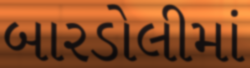
બારડોલીમાં